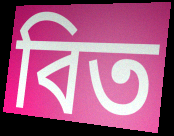
বিত